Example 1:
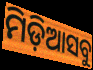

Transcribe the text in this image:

ମିଡ଼ିଆସବୁ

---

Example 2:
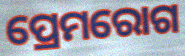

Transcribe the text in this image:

ପ୍ରେମରୋଗ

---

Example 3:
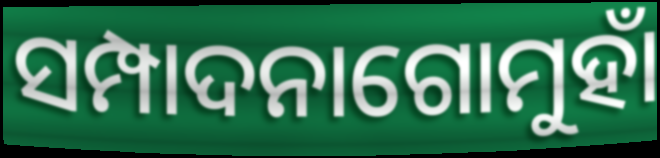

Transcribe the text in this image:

ସମ୍ପାଦନାଗୋମୁହାଁ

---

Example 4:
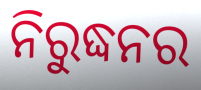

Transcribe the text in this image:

ନିରୁଦ୍ଧନର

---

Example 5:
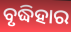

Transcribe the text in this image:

ବୃଦ୍ଧିହାର